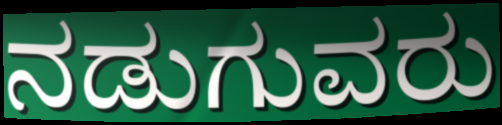
ನಡುಗುವರು